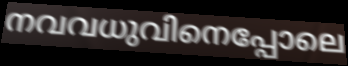
നവവധുവിനെപ്പോലെ